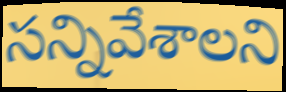
సన్నివేశాలని